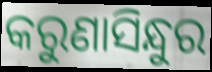
କରୁଣାସିନ୍ଧୁର